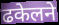
ढकेलने